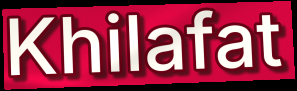
Khilafat